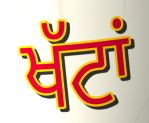
ਖੱਟਾਂ